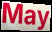
May